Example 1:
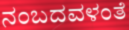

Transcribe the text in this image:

ನಂಬದವಳಂತೆ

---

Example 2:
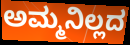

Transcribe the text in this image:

ಅಮ್ಮನಿಲ್ಲದ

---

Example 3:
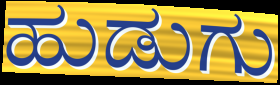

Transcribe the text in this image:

ಹುಡುಗು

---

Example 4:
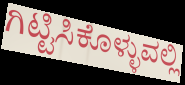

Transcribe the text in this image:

ಗಿಟ್ಟಿಸಿಕೊಳ್ಳುವಲ್ಲಿ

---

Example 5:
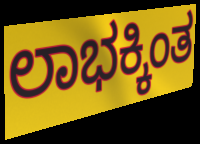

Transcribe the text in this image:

ಲಾಭಕ್ಕಿಂತ